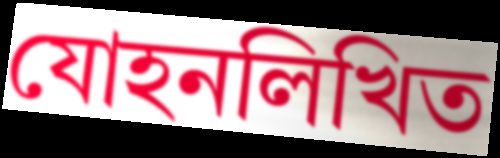
যোহনলিখিত